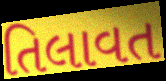
તિલાવત